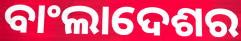
ବାଂଲାଦେଶର